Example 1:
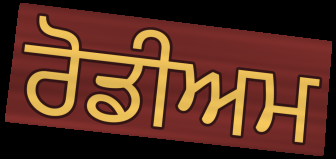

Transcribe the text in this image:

ਰੋਡੀਅਮ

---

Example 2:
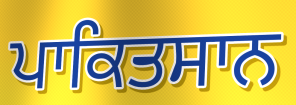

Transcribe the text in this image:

ਪਾਕਿਤਸਾਨ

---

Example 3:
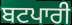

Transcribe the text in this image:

ਬਟਪਾਰੀ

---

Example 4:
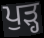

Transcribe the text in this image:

ਪੁੜ੍ਹ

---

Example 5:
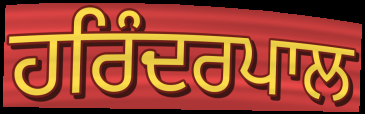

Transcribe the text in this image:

ਹਰਿੰਦਰਪਾਲ